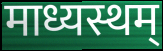
माध्यस्थम्